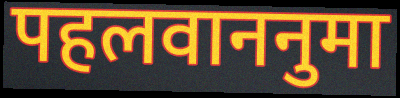
पहलवाननुमा